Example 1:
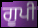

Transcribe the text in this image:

ਗੂਪੀ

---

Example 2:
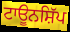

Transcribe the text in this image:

ਟਾਊਨਸ਼ਿੱਪ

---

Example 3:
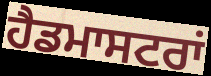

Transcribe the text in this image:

ਹੈਡਮਾਸਟਰਾਂ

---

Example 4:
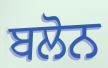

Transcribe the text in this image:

ਬਲੋਨ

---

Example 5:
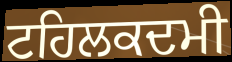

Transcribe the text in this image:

ਟਹਿਲਕਦਮੀ